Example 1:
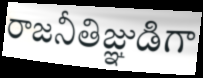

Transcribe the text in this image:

రాజనీతిజ్ఞుడిగా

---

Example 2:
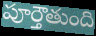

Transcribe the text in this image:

పూర్తౌతుంది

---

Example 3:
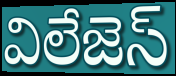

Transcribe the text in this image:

విలేజెస్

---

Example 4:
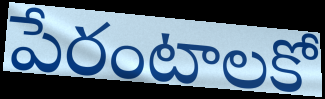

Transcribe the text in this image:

పేరంటాలకో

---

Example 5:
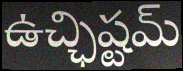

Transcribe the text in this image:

ఉచ్ఛిష్టమ్